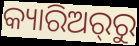
କ୍ୟାରିଅର୍‌ରୁ